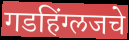
गडहिंग्लजचे